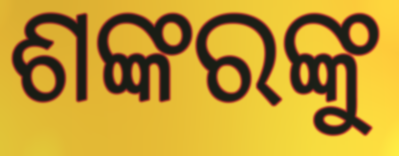
ଶଙ୍କରଙ୍କୁ